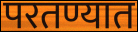
परतण्यात